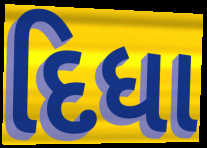
દિધા